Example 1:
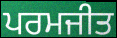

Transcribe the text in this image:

ਪਰਮਜੀਤ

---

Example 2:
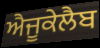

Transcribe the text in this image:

ਐਜੂਕੇਲੈਬ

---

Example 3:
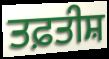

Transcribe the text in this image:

ਤਫ਼ਤੀਸ਼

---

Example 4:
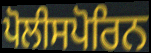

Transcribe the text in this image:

ਪੋਲੀਸਪੋਰਿਨ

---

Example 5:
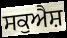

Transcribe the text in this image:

ਸਕੁਐਸ਼